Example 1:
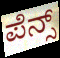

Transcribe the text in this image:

ಪೆನ್ಸ್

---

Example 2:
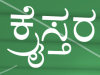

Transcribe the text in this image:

ಕ್ರೈಸ್ತರ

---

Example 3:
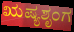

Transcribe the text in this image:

ಋಷ್ಯಶೃಂಗ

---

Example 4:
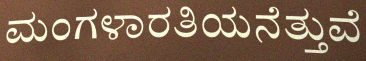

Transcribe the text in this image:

ಮಂಗಳಾರತಿಯನೆತ್ತುವೆ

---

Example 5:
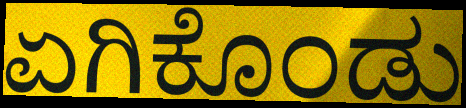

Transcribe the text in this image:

ಏಗಿಕೊಂಡು